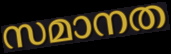
സമാനത